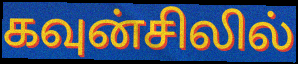
கவுன்சிலில்